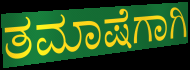
ತಮಾಷೆಗಾಗಿ